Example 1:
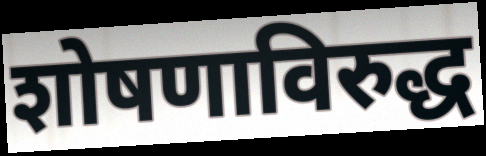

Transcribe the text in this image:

शोषणाविरुद्ध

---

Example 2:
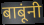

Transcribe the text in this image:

बाबूंनी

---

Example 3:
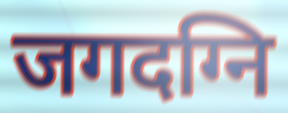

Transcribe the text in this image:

जगदग्नि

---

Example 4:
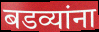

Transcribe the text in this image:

बडव्यांना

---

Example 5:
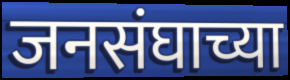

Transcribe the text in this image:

जनसंघाच्या